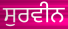
ਸੁਰਵੀਨ